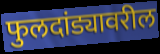
फुलदांड्यावरील